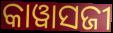
କାୱାସଜୀ